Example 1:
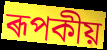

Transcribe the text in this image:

ৰূপকীয়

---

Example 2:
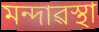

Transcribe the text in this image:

মন্দাৱস্থা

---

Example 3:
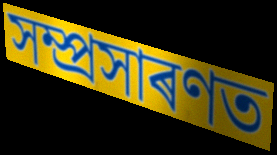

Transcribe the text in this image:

সম্প্ৰসাৰণত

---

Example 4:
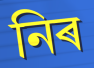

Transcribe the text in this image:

নিৰ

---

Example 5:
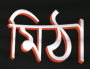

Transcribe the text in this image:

মিঠা